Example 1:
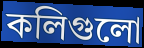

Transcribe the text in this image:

কলিগুলো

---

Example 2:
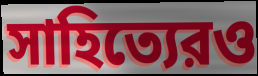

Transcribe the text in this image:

সাহিত্যেরও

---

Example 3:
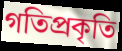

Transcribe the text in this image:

গতিপ্রকৃতি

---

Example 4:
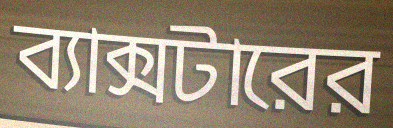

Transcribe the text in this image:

ব্যাক্সটারের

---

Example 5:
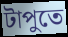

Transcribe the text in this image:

টাপুতে